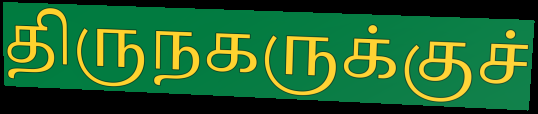
திருநகருக்குச்